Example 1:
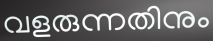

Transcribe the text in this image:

വളരുന്നതിനും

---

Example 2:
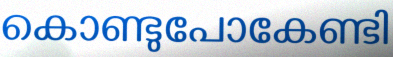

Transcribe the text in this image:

കൊണ്ടുപോകേണ്ടി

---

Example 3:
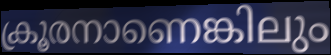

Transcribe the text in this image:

ക്രൂരനാണെങ്കിലും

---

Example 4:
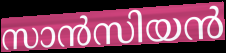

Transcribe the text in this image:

സാൻസിയൻ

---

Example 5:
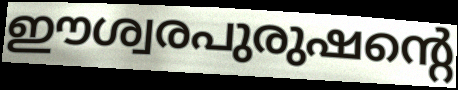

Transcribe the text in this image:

ഈശ്വരപുരുഷന്റെ